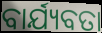
ବାର୍ଯ୍ୟବତା